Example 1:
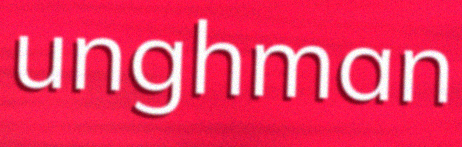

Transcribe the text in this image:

unghman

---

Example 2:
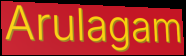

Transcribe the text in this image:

Arulagam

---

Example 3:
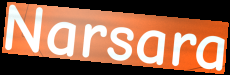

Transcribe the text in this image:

Narsara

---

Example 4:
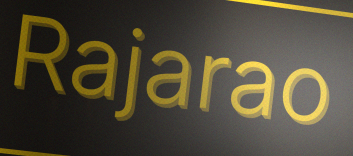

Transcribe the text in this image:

Rajarao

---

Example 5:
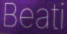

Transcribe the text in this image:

Beati